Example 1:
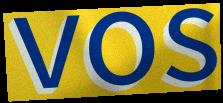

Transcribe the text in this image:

vos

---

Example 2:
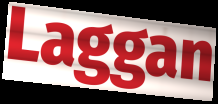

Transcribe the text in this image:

Laggan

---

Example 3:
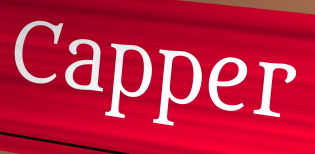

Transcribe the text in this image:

Capper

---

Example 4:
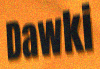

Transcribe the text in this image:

Dawki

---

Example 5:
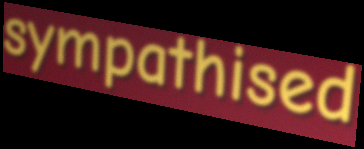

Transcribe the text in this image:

sympathised